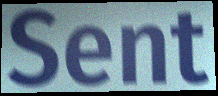
Sent